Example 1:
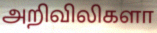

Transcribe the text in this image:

அறிவிலிகளா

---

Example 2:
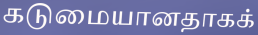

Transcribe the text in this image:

கடுமையானதாகக்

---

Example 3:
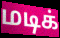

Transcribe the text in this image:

மடிக்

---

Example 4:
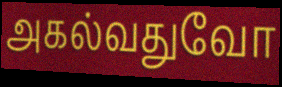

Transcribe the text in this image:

அகல்வதுவோ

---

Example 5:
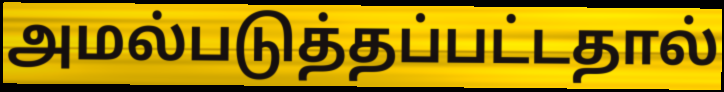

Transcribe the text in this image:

அமல்படுத்தப்பட்டதால்